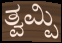
ತ್ವಮ್ಪಿ